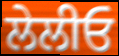
ਲੇਲੀਓ